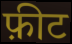
फ़ीट